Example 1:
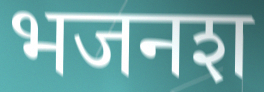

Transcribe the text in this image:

भजनश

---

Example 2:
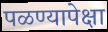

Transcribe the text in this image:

पळण्यापेक्षा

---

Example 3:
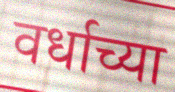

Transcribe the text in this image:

वर्धाच्या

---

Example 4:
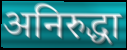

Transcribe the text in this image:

अनिरुद्धा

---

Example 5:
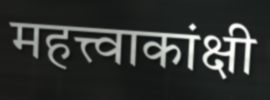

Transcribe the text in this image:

महत्त्वाकांक्षी